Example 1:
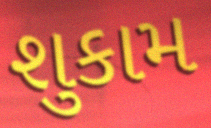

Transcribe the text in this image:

શુકામ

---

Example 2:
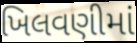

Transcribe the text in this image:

ખિલવણીમાં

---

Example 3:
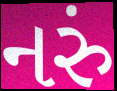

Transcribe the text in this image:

નરું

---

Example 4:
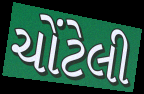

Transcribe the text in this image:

ચોંટેલી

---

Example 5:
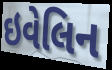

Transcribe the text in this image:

ઇવેલિન